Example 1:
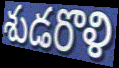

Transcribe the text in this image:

శుడరొళి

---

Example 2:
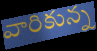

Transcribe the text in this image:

వారికున్న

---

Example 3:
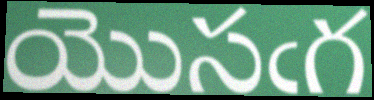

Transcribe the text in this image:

యొసఁగ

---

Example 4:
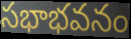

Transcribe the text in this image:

సభాభవనం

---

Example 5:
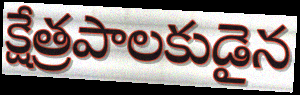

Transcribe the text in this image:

క్షేత్రపాలకుడైన